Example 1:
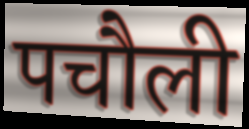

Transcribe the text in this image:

पचौली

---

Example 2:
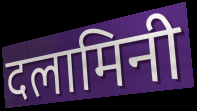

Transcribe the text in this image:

दलामिनी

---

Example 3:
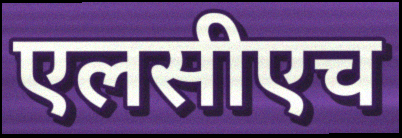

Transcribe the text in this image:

एलसीएच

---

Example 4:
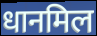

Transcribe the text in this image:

धानमिल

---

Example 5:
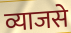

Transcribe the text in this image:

व्याजसे